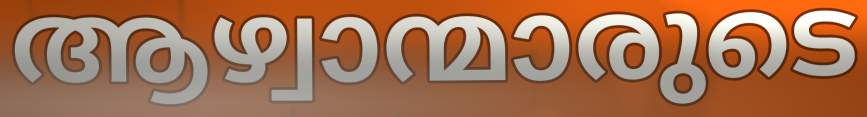
ആഴ്വാന്മാരുടെ